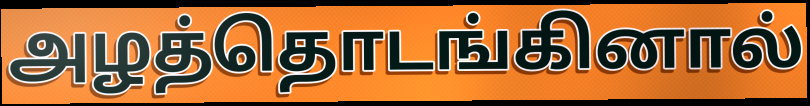
அழத்தொடங்கினால்